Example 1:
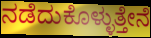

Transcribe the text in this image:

ನಡೆದುಕೊಳ್ಳುತ್ತೇನೆ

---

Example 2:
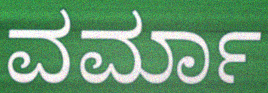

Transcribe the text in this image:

ವರ್ಮಾ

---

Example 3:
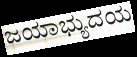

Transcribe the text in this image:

ಜಯಾಭ್ಯುದಯ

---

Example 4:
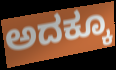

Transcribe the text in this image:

ಅದಕ್ಕೂ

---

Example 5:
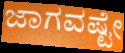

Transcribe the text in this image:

ಜಾಗವಷ್ಟೇ